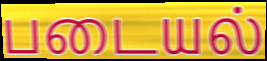
படையல்